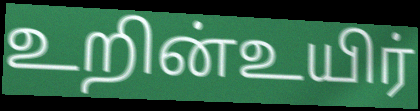
உறின்உயிர்